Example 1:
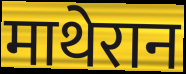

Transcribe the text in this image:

माथेरान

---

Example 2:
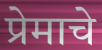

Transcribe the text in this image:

प्रेमाचे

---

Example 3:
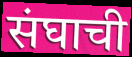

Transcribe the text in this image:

संघाची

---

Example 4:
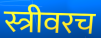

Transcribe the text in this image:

स्त्रीवरच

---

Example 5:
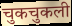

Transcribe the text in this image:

चुकचुकली